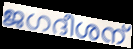
ജഗദീശന്